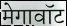
मेगावॉट